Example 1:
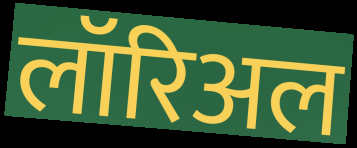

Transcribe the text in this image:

लॉरिअल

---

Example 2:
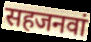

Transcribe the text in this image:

सहजनवां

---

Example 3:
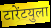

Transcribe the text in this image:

टारेंटयुला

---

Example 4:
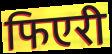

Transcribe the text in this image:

फिएरी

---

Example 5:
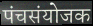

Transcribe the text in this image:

पंचसंयोजक